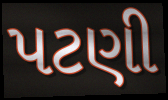
પટણી